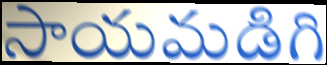
సాయమడిగి